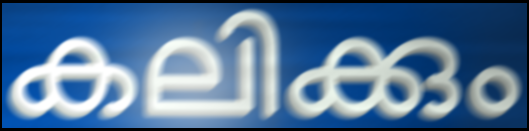
കലിക്കും